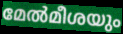
മേൽമീശയും